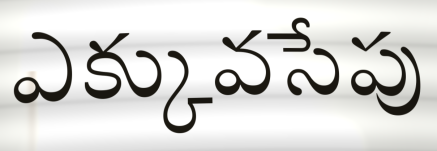
ఎక్కువసేపు